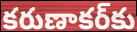
కరుణాకర్‌కు